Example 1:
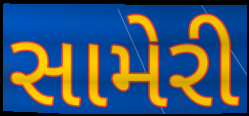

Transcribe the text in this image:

સામેરી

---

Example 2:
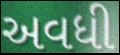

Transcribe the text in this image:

અવધી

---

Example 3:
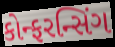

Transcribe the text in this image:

કોન્ફરન્સિંગ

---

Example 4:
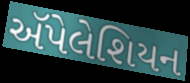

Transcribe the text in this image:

ઍપેલેશિયન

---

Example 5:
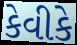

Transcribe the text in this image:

કેવીકે